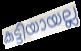
കുട്ടിയായല്ല